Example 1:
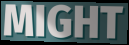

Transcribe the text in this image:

MIGHT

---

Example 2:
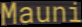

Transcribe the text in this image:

Mauni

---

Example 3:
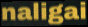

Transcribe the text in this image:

naligai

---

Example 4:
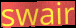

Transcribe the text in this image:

swair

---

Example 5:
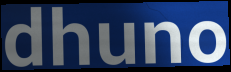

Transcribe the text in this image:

dhuno